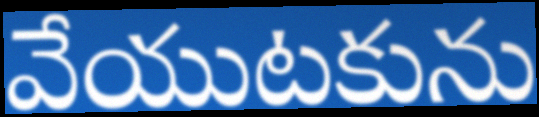
వేయుటకును